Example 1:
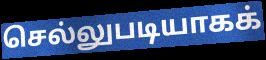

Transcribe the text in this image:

செல்லுபடியாகக்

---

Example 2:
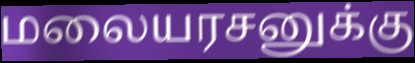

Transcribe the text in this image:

மலையரசனுக்கு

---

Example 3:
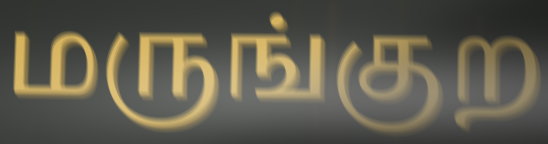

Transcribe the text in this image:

மருங்குற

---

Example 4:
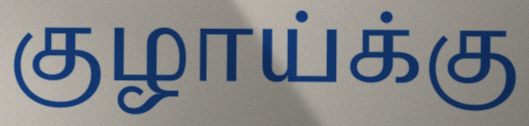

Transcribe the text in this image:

குழாய்க்கு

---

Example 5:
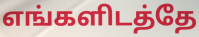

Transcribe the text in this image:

எங்களிடத்தே